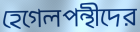
হেগেলপন্থীদের